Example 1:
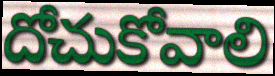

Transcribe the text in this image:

దోచుకోవాలి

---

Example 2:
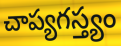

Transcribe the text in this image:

చాప్యగస్త్యం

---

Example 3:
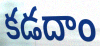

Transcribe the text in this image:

కడదాం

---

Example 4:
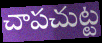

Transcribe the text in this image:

చాపచుట్ట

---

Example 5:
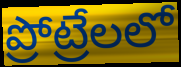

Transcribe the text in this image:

ప్రోట్రేలలో